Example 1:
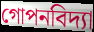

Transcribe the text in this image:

গোপনবিদ্যা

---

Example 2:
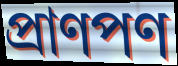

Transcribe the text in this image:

প্রাণপণ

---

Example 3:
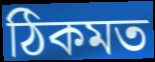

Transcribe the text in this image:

ঠিকমত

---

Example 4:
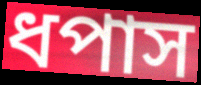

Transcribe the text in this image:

ধপাস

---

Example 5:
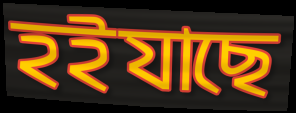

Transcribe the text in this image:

হইযাছে